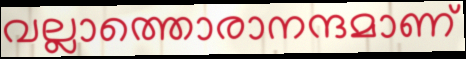
വല്ലാത്തൊരാനന്ദമാണ്